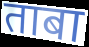
ताबा